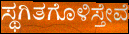
ಸ್ಥಗಿತಗೊಳಿಸ್ತೇವೆ